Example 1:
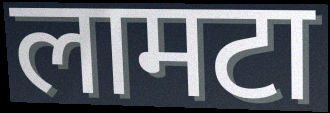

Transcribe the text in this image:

लामटा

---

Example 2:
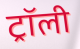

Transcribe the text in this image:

ट्रॉली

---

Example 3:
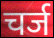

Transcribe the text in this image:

चर्ज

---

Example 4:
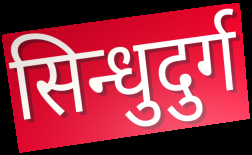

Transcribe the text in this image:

सिन्धुदुर्ग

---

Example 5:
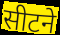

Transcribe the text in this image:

सीटने